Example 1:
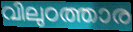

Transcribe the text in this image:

വിലുഠത്താര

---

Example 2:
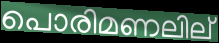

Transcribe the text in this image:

പൊരിമണലില്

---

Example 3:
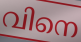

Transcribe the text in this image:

വിനെ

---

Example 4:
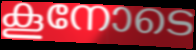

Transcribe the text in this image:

കൂനോടെ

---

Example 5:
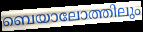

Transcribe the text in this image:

ബെയാലോത്തിലും